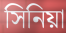
সিনিয়া